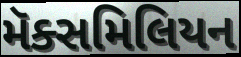
મૅક્સમિલિયન